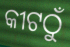
କୀଟଠୁଁ